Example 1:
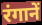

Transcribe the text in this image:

रंगानें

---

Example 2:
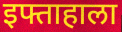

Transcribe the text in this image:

इफ्ताहाला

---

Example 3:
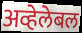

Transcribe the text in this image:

अव्हेलेबल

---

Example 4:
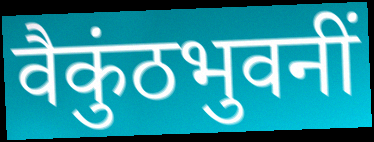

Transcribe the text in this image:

वैकुंठभुवनीं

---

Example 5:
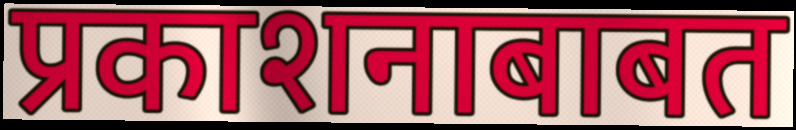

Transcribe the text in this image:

प्रकाशनाबाबत